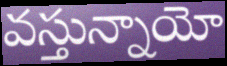
వస్తున్నాయో